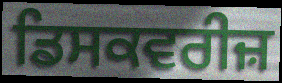
ਡਿਸਕਵਰੀਜ਼